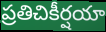
ప్రతిచికీర్షయా